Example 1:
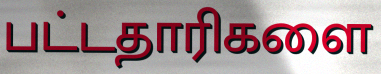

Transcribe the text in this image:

பட்டதாரிகளை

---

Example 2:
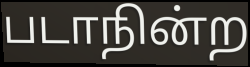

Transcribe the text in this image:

படாநின்ற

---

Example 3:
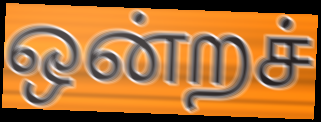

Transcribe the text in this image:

ஒன்றச்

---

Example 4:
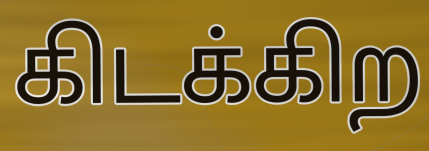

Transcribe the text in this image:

கிடக்கிற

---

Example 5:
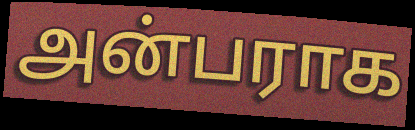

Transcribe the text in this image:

அன்பராக